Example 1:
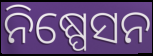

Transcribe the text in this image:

ନିଷ୍ପେସନ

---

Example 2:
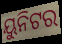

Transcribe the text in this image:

ୟୁନିଟର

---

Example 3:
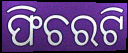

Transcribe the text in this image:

ଫିଚରଟି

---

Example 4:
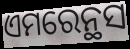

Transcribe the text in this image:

ଏମରେନ୍ଥସ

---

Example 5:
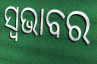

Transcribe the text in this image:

ସ୍ୱଭାବର